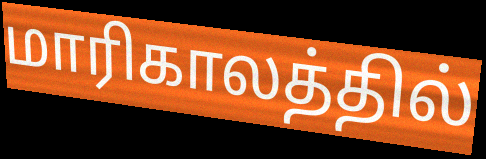
மாரிகாலத்தில்